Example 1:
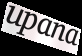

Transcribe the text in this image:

upana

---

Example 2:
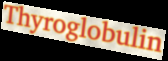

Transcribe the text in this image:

Thyroglobulin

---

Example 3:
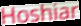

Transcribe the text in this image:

Hoshiar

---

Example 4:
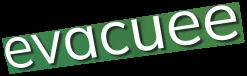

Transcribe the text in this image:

evacuee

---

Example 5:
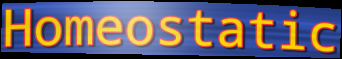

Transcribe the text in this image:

Homeostatic